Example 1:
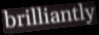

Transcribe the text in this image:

brilliantly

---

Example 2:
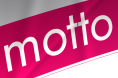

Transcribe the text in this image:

motto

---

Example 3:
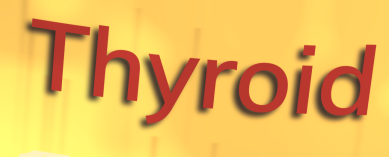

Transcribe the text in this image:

Thyroid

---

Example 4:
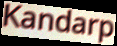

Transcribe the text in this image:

Kandarp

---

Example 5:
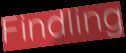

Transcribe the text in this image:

Findling